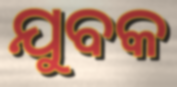
ଯୁବକ